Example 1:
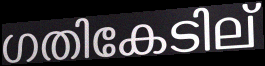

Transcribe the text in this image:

ഗതികേടില്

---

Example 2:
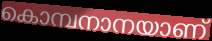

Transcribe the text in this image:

കൊമ്പനാനയാണ്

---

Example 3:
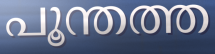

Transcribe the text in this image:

പൂന്തത്ത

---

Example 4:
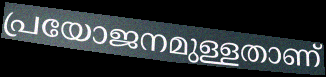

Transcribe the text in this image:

പ്രയോജനമുള്ളതാണ്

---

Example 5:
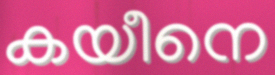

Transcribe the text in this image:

കയീനെ